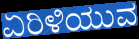
ಏರಿಳಿಯುವ